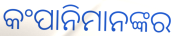
କଂପାନିମାନଙ୍କର